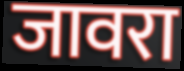
जावरा